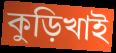
কুড়িখাই